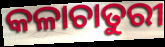
କଳାଚାତୁରୀ